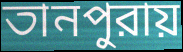
তানপুরায়